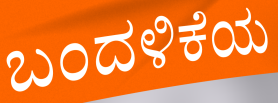
ಬಂದಳಿಕೆಯ